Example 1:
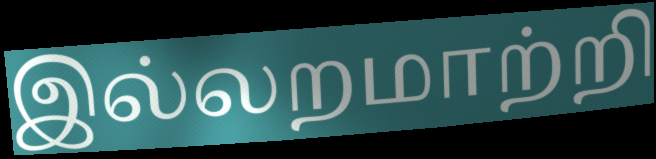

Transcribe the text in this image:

இல்லறமாற்றி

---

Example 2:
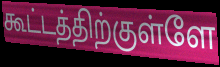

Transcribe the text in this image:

கூட்டத்திற்குள்ளே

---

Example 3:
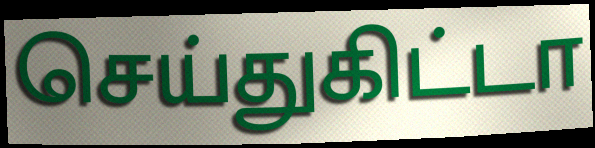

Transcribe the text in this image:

செய்துகிட்டா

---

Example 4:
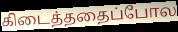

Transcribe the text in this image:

கிடைத்ததைப்போல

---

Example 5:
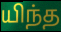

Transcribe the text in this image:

யிந்த